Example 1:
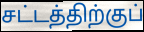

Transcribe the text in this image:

சட்டத்திற்குப்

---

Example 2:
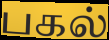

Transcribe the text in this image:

பகல்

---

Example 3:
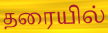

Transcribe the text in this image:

தரையில்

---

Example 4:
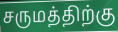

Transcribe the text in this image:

சருமத்திற்கு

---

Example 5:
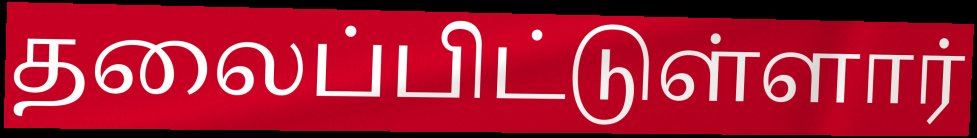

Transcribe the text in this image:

தலைப்பிட்டுள்ளார்